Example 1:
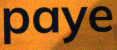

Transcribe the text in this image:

paye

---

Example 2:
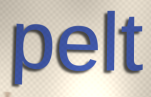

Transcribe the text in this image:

pelt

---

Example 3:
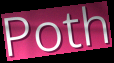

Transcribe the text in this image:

Poth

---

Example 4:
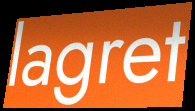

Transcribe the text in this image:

lagret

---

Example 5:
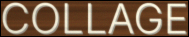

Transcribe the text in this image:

COLLAGE